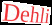
Dehli